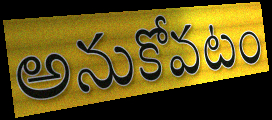
అనుకోవటం